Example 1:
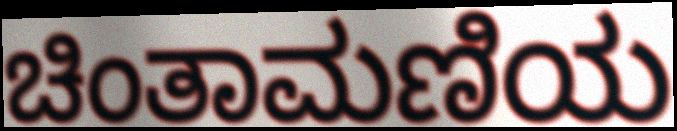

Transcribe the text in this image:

ಚಿಂತಾಮಣಿಯ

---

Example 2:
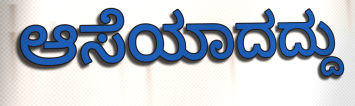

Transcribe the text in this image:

ಆಸೆಯಾದದ್ದು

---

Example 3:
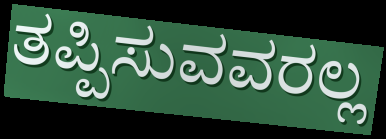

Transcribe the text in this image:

ತಪ್ಪಿಸುವವರಲ್ಲ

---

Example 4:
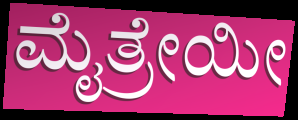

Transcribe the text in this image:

ಮೈತ್ರೇಯೀ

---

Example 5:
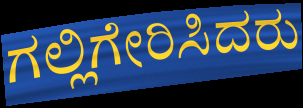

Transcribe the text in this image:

ಗಲ್ಲಿಗೇರಿಸಿದರು